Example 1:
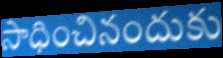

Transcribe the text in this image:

సాధించినందుకు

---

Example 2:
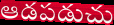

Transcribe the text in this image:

ఆడపడుచు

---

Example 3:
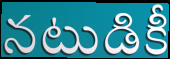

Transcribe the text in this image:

నటుడికీ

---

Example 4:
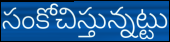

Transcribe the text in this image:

సంకోచిస్తున్నట్టు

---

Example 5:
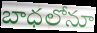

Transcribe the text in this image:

బాధలోనూ